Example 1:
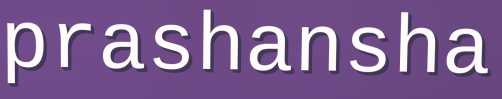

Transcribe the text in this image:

prashansha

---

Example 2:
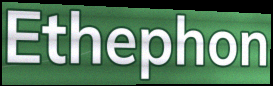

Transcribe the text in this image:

Ethephon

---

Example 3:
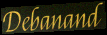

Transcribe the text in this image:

Debanand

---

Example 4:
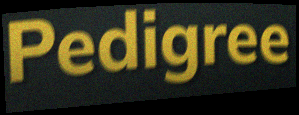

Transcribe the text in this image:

Pedigree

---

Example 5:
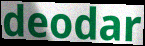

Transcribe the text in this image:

deodar